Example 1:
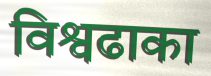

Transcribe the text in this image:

विश्वढाका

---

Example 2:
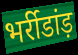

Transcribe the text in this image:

भर्रीडांड़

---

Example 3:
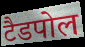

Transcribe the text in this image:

टैडपोल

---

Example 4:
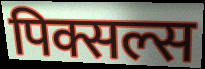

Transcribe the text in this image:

पिक्सल्स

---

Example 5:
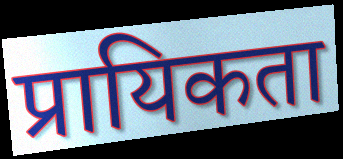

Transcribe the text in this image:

प्रायिकता